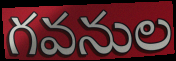
గవనుల